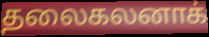
தலைகலனாக்